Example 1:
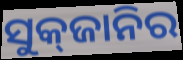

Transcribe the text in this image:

ସୁକ୍‌ଜାନିର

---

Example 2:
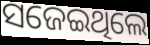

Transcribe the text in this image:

ସଜେଇଥିଲେ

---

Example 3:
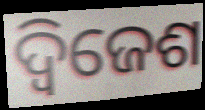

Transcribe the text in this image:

ଦ୍ୱିଜେଶ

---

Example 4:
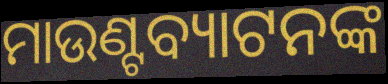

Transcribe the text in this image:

ମାଉଣ୍ଟବ୍ୟାଟନଙ୍କ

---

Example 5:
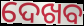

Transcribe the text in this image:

ଦେଖବ